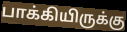
பாக்கியிருக்கு